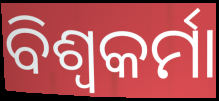
ବିଶ୍ବକର୍ମା